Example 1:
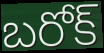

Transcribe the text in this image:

బరోక్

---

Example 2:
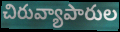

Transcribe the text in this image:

చిరువ్యాపారుల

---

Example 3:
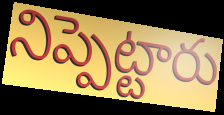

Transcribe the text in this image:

నిప్పెట్టారు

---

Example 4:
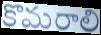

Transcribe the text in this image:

కొమరాలి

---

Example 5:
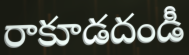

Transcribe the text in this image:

రాకూడదండీ